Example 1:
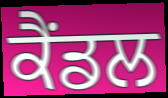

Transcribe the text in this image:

ਕੈਂਡਲ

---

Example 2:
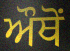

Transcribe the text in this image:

ਔਥੋਂ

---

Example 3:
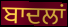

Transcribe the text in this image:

ਬਾਦਲਾਂ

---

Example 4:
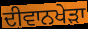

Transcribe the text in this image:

ਦੀਵਾਨਖੇੜਾ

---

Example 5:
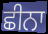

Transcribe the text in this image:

ਛੀਨਾ